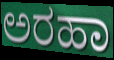
ಅರಹಾ